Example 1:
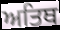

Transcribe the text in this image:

ਅਤਿਥ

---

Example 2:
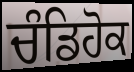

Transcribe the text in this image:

ਚੰਡਿਹੋਕ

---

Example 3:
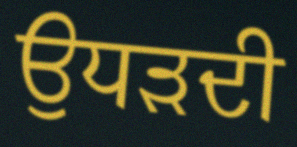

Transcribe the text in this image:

ਉਧੜਦੀ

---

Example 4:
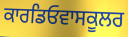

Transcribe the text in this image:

ਕਾਰਡਿਓਵਾਸਕੂਲਰ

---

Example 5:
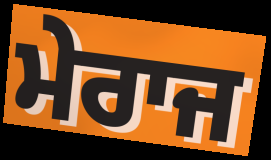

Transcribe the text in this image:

ਮੇਰਾਜ